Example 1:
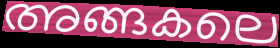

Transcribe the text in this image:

അങ്ങകലെ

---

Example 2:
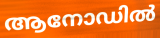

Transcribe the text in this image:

ആനോഡിൽ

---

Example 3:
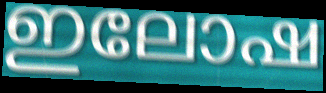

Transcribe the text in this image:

ഇലോഷ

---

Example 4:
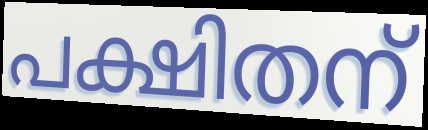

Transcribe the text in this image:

പക്ഷിതന്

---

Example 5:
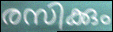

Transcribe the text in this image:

രസിക്കും